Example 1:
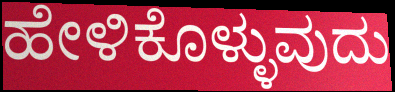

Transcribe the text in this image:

ಹೇಳಿಕೊಳ್ಳುವುದು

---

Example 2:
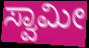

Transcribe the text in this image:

ಸ್ವಾಮೀ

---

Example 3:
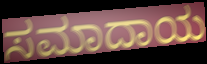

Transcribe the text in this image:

ಸಮಾದಾಯ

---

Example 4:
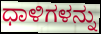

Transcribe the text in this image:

ಧಾಳಿಗಳನ್ನು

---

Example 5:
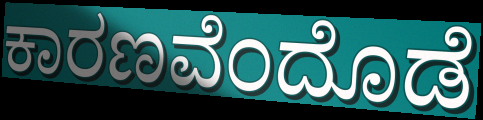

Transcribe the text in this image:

ಕಾರಣವೆಂದೊಡೆ